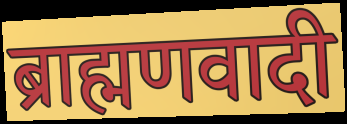
ब्राह्मणवादी